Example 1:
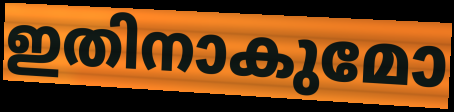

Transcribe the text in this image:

ഇതിനാകുമോ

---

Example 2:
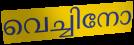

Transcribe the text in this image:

വെച്ചിനോ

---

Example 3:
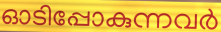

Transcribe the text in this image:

ഓടിപ്പോകുന്നവർ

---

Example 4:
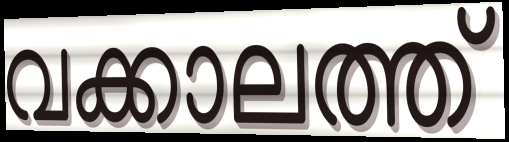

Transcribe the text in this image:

വക്കാലത്ത്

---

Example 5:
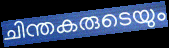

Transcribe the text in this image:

ചിന്തകരുടെയും